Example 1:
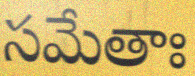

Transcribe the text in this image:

సమేతాః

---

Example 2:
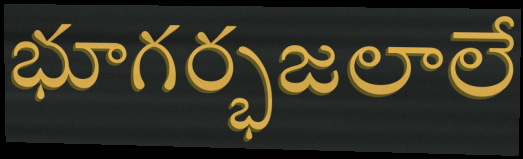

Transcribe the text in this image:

భూగర్భజలాలే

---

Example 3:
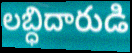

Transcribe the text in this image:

లబ్ధిదారుడి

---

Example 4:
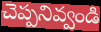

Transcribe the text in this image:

చెప్పనివ్వండి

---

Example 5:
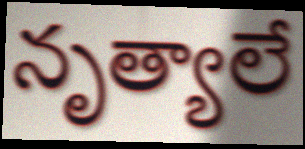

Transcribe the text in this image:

నృత్యాలే